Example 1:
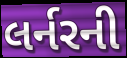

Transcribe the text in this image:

લર્નરની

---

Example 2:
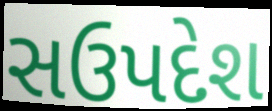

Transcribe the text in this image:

સઉપદેશ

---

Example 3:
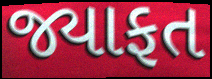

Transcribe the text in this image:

જ્યાફત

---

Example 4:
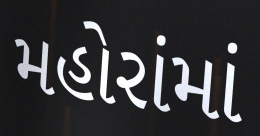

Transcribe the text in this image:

મહોરાંમાં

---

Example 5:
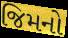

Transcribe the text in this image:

જિમનો